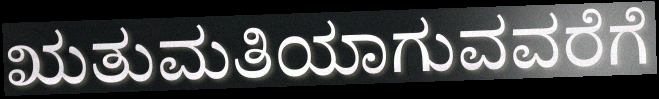
ಋತುಮತಿಯಾಗುವವರೆಗೆ